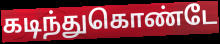
கடிந்துகொண்டே